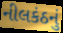
નીલકંઠનું